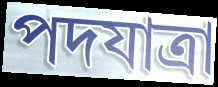
পদযাত্রা